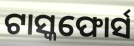
ଟାସ୍କଫୋର୍ସ